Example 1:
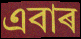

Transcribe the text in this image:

এবাৰ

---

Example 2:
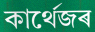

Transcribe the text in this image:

কাৰ্থেজৰ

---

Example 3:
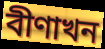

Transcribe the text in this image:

বীণাখন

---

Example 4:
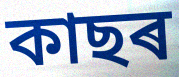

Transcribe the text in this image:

কাছৰ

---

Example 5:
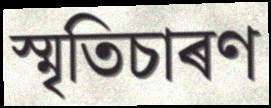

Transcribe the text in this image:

স্মৃতিচাৰণ